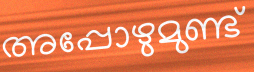
അപ്പോഴുമുണ്ട്